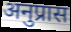
अनुप्रास